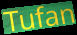
Tufan